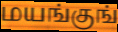
மயங்குங்